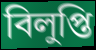
বিলুপ্তি